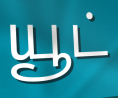
யூட்